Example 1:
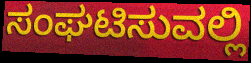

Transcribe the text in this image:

ಸಂಘಟಿಸುವಲ್ಲಿ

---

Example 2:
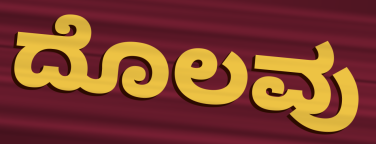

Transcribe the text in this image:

ದೊಲವು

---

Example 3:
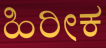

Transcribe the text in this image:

ಹಿರೀಕ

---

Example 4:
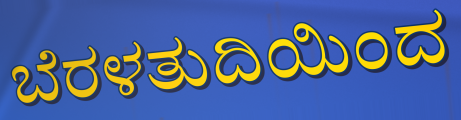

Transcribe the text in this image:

ಬೆರಳತುದಿಯಿಂದ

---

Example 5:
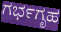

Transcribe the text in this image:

ಗರ್ಭಗೃಹ